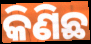
କିଣିଛ